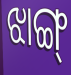
ଝାଙ୍ଗ୍